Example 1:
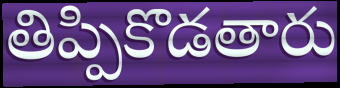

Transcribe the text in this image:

తిప్పికొడతారు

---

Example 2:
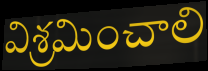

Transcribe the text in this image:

విశ్రమించాలి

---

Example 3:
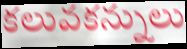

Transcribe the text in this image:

కలువకన్నులు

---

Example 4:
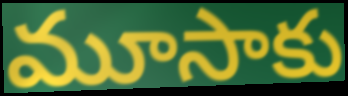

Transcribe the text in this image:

మూసాకు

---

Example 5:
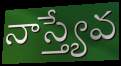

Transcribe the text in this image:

నాస్త్యేవ